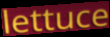
lettuce